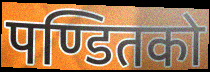
पण्डितको